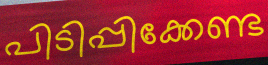
പിടിപ്പിക്കേണ്ട